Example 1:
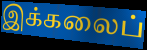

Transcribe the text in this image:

இக்கலைப்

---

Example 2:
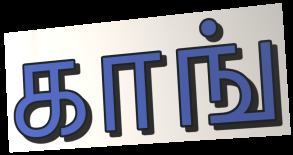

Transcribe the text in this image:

காங்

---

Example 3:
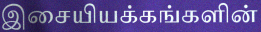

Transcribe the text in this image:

இசையியக்கங்களின்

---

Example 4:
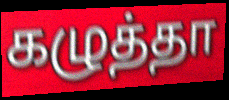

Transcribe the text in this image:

கழுத்தா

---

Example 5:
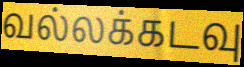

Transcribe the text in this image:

வல்லக்கடவு